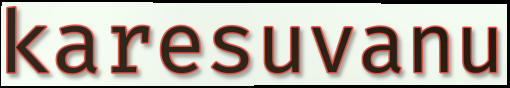
karesuvanu